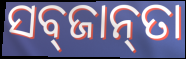
ସବ୍‌ଜାନ୍‌ତା